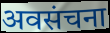
अवसंचना